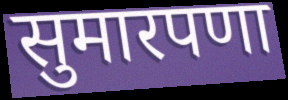
सुमारपणा